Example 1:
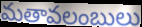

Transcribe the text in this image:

మతావలంబులు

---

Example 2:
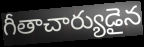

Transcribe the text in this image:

గీతాచార్యుడైన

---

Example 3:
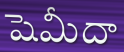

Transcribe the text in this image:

షెమీదా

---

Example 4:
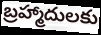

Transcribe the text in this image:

బ్రహ్మాదులకు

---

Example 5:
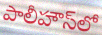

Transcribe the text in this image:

పాలీహౌస్‌లో